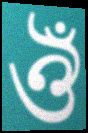
ঔঁ